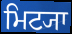
ਮਿਟ੍ਯਾ